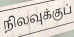
நிலவுக்குப்